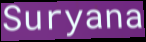
Suryana